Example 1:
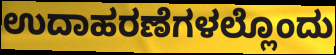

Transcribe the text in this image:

ಉದಾಹರಣೆಗಳಲ್ಲೊಂದು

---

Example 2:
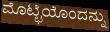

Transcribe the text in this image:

ಮೊಟ್ಟೆಯೊಂದನ್ನು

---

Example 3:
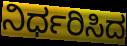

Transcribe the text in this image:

ನಿರ್ಧರಿಸಿದ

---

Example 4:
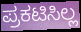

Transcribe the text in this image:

ಪ್ರಕಟಿಸಿಲ್ಲ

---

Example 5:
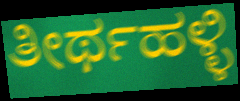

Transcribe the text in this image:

ತೀರ್ಥಹಳ್ಳಿ